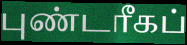
புண்டரீகப்